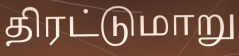
திரட்டுமாறு